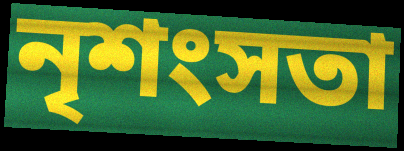
নৃশংসতা